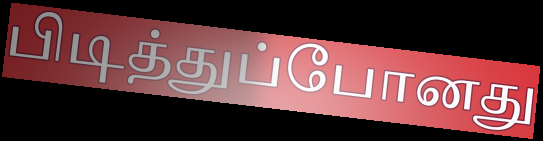
பிடித்துப்போனது